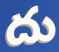
దు